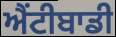
ਐਂਟੀਬਾਡੀ